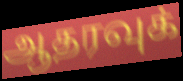
ஆதரவுக்